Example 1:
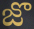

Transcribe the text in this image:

జొ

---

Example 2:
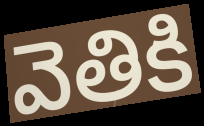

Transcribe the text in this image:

వెతికి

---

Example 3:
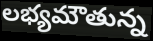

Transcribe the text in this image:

లభ్యమౌతున్న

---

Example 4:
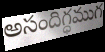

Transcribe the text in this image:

అసందిగ్ధముగ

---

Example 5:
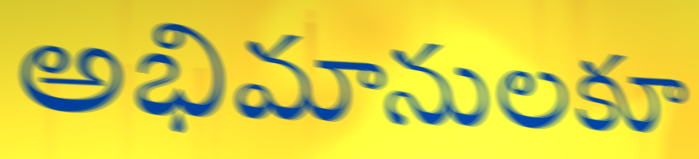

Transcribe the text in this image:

అభిమానులకూ